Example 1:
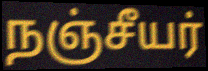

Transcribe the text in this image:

நஞ்சீயர்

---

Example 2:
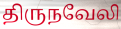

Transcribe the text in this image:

திருநவேலி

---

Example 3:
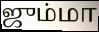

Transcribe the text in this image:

ஜும்மா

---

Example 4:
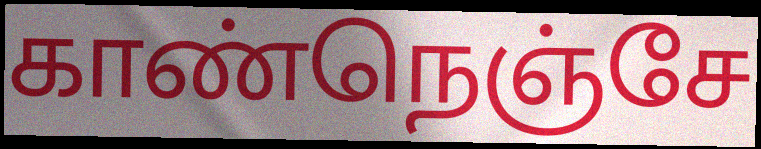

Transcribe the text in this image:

காண்நெஞ்சே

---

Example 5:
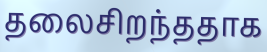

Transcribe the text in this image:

தலைசிறந்ததாக